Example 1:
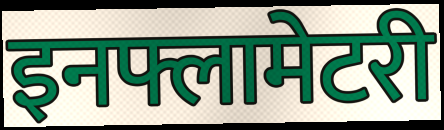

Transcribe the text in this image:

इनफ्लामेटरी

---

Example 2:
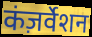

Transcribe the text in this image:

कंज़र्वेशन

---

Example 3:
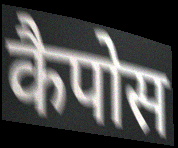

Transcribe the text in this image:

कैपोस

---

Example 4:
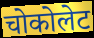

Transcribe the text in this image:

चोकोलेट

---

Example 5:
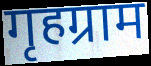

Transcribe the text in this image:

गृहग्राम